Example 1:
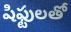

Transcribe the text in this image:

షిఫ్టులతో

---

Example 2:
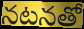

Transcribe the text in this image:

నటనతో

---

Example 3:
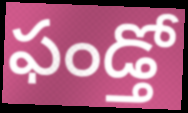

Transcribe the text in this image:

ఫండ్తో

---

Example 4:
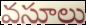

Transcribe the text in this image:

వసూలు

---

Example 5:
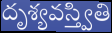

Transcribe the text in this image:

దృశ్యవస్త్వితి